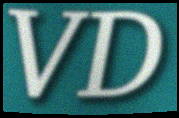
VD